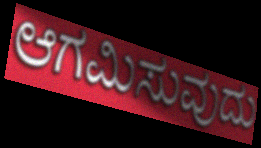
ಆಗಮಿಸುವುದು